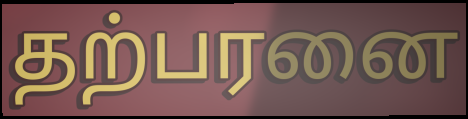
தற்பரனை